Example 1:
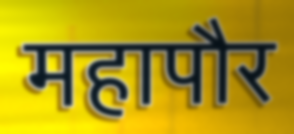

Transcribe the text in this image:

महापौर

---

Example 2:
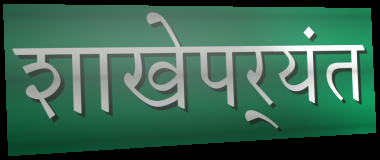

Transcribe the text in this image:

शाखेपर्यंत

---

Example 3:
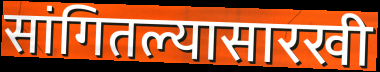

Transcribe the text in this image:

सांगितल्यासारखी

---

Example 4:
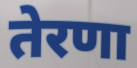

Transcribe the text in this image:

तेरणा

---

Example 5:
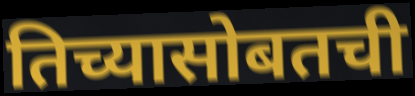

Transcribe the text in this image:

तिच्यासोबतची